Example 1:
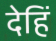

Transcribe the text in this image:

देहिं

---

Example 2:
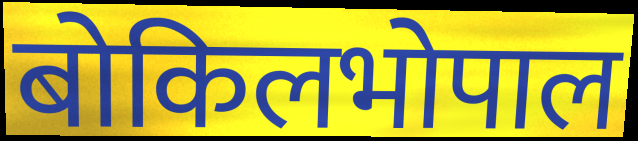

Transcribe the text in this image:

बोकिलभोपाल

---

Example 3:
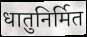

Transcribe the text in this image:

धातुनिर्मित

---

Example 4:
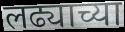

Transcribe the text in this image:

लढ्याच्या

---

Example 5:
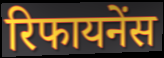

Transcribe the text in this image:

रिफायनेंस